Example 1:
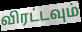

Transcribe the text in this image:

விரட்டவும்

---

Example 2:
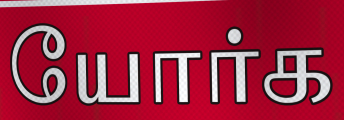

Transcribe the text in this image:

யோர்க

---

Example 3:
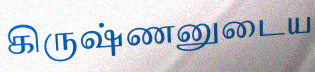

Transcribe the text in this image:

கிருஷ்ணனுடைய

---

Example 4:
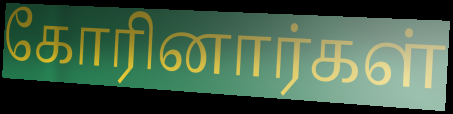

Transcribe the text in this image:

கோரினார்கள்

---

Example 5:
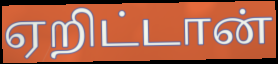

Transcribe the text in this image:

ஏறிட்டான்